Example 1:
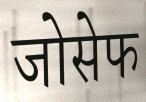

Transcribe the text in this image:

जोसेफ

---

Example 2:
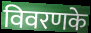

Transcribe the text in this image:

विवरणके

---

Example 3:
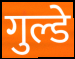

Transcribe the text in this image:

गुल्डे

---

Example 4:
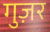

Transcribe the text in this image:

गुज़र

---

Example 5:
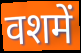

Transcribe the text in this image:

वशमें